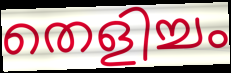
തെളിച്ചം